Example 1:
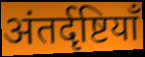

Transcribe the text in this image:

अंतर्दृष्टियाँ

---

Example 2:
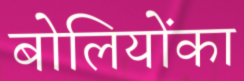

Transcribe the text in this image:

बोलियोंका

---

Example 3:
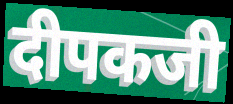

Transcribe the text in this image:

दीपकजी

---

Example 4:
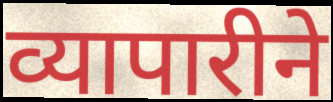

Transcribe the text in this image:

व्यापारीने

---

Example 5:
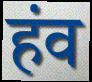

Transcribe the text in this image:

हंव